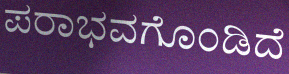
ಪರಾಭವಗೊಂಡಿದೆ